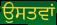
ਉਸਤਵਾਂ